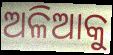
ଅଳିଆକୁ